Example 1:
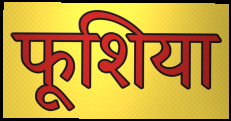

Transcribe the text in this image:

फूशिया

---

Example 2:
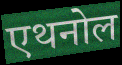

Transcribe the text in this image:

एथनोल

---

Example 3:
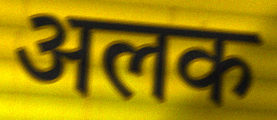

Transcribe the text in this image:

अलक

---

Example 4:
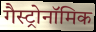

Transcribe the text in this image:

गैस्ट्रोनॉमिक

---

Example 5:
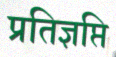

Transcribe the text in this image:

प्रतिज्ञप्ति